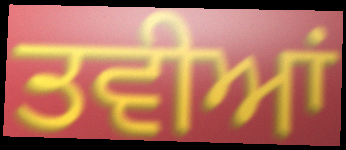
ਤਵੀਆਂ